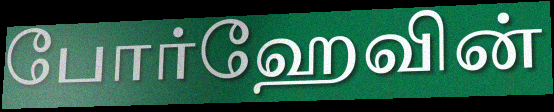
போர்ஹேவின்